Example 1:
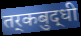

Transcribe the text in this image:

तर्कबुद्धी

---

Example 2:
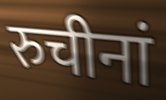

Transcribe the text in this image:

रुचीनां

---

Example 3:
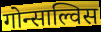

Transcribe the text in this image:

गोन्साल्विस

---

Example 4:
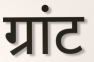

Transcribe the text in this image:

ग्रांट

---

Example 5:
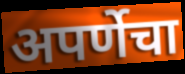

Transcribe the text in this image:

अपर्णेचा